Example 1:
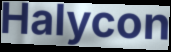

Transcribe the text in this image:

Halycon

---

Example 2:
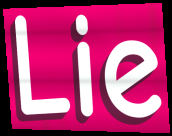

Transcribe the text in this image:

Lie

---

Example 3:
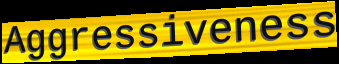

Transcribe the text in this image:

Aggressiveness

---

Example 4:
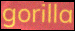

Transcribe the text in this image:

gorilla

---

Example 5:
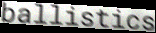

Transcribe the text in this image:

ballistics